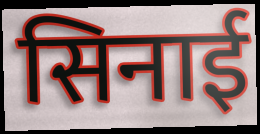
सिनाई